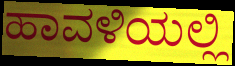
ಹಾವಳಿಯಲ್ಲಿ